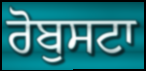
ਰੋਬੁਸਟਾ